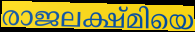
രാജലക്ഷ്മിയെ